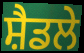
ਸ਼ੈਡਲੇ